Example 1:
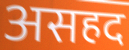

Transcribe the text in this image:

असहद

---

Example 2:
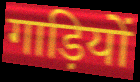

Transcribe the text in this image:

गाड़ियों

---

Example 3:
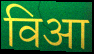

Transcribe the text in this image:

विआ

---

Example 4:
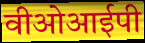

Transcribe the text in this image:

वीओआईपी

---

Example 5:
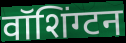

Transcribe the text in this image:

वॉशिंग्टन